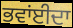
ਭਵਾਂਈਦਾ